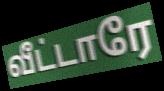
வீட்டாரே